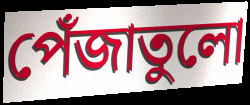
পেঁজাতুলো